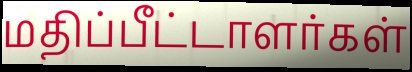
மதிப்பீட்டாளர்கள்